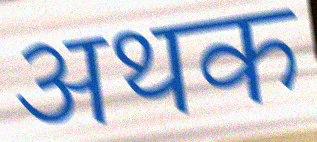
अथक